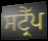
ਸਟ੍ਰੈੱਪ